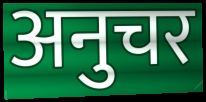
अनुचर